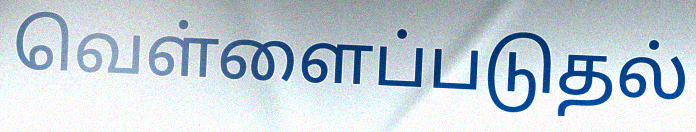
வெள்ளைப்படுதல்